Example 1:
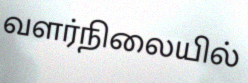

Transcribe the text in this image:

வளர்நிலையில்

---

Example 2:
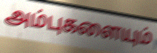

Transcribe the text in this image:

அம்புகளையும்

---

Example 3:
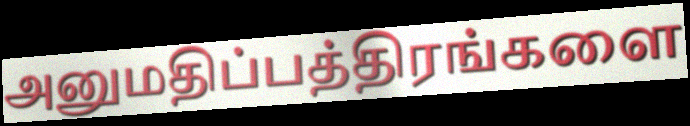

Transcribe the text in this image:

அனுமதிப்பத்திரங்களை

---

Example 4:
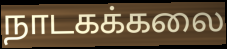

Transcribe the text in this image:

நாடகக்கலை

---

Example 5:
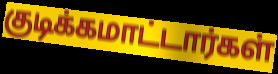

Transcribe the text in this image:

குடிக்கமாட்டார்கள்